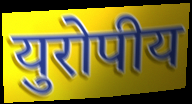
युरोपीय